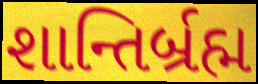
શાન્તિર્બ્રહ્મ